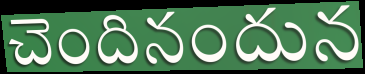
చెందినందున